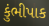
કુંભીપાક